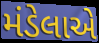
મંડેલાએ